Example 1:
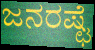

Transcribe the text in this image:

ಜನರಷ್ಟೆ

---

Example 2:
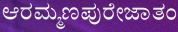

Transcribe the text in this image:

ಆರಮ್ಮಣಪುರೇಜಾತಂ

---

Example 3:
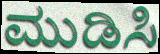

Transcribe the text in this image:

ಮುಡಿಸಿ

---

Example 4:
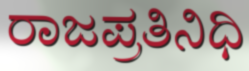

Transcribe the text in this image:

ರಾಜಪ್ರತಿನಿಧಿ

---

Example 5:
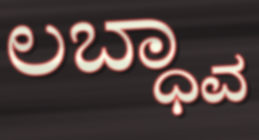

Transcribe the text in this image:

ಲಬ್ಧ್ವಾ